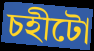
চহীটো